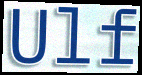
Ulf